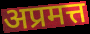
अप्रमत्त